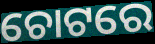
ଚୋଟରେ